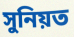
সুনিয়ত